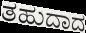
ತಹುದಾದ